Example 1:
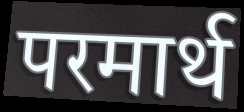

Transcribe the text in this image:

परमार्थ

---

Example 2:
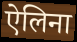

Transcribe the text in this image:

ऐलिना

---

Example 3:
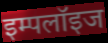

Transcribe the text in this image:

इम्पलॉइज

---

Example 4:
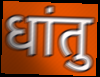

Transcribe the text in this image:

धांतु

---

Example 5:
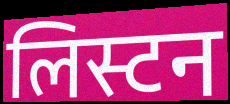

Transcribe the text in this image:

लिस्टन